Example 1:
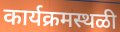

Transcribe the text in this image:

कार्यक्रमस्थळी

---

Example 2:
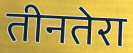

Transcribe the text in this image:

तीनतेरा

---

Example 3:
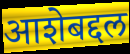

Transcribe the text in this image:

आशेबद्दल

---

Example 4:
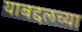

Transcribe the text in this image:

याबद्दलच्या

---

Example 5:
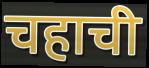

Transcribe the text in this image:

चहाची